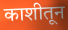
काशीतून